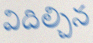
విదిల్చిన